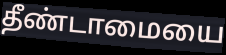
தீண்டாமையை